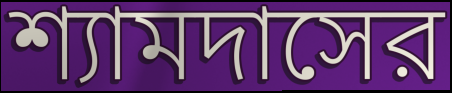
শ্যামদাসের